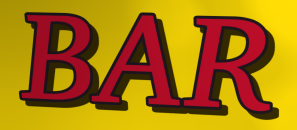
BAR